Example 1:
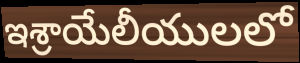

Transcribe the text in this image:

ఇశ్రాయేలీయులలో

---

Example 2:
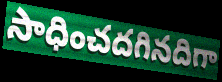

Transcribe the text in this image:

సాధించదగినదిగా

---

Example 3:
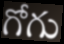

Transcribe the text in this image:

గోగు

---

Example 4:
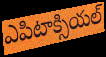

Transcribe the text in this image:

ఎపిటాక్సియల్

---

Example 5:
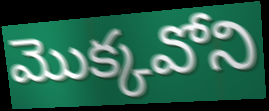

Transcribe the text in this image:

మొక్కవోని